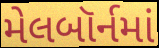
મેલબૉર્નમાં